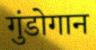
गुंडोगान